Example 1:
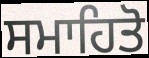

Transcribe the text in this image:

ਸਮਾਹਿਤੋ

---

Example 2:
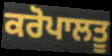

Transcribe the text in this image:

ਕਰੋਪਾਲਤੂ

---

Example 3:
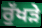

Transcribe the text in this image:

ਰੁੱਖੜੇ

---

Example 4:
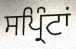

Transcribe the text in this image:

ਸਪ੍ਰਿੰਟਾਂ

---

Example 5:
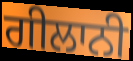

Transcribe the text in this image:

ਗੀਲਾਨੀ